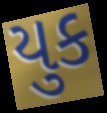
યુક